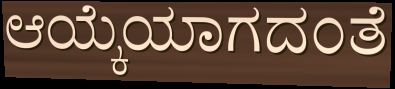
ಆಯ್ಕೆಯಾಗದಂತೆ